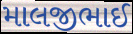
માલજીભાઈ